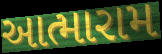
આત્મારામ